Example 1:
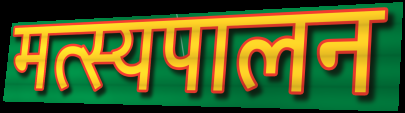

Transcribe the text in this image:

मत्स्यपालन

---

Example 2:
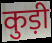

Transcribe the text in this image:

कुड़ी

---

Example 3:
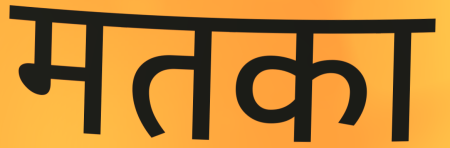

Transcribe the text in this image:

मतका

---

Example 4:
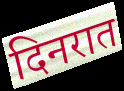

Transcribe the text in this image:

दिनरात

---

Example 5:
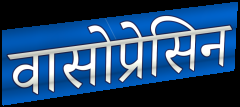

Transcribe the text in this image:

वासोप्रेसिन